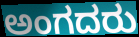
ಅಂಗದರು